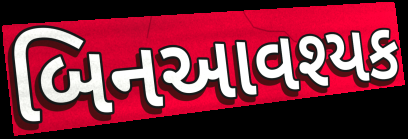
બિનઆવશ્યક